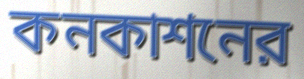
কনকাশনের